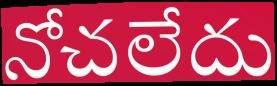
నోచలేదు